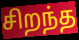
சிறந்த